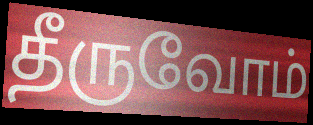
தீருவோம்